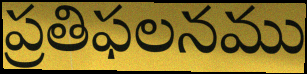
ప్రతిఫలనము